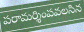
పరామర్శింపవలసిన